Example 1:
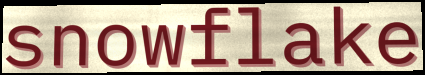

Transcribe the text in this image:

snowflake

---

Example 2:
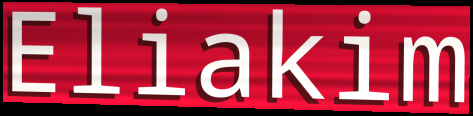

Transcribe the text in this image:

Eliakim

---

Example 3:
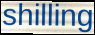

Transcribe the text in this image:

shilling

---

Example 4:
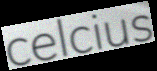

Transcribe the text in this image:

celcius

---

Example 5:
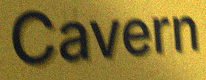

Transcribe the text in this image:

Cavern